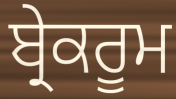
ਬ੍ਰੇਕਰੂਮ